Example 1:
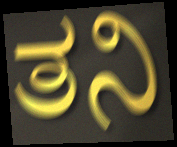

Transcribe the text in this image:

ತನಿ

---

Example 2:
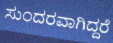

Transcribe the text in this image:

ಸುಂದರವಾಗಿದ್ದರೆ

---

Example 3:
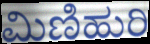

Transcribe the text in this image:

ಮಿಣಿಹುರಿ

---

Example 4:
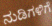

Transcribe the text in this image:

ನುಡಿಗಳಿಗೆ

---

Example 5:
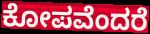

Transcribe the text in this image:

ಕೋಪವೆಂದರೆ